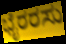
ಭೈರರಸು